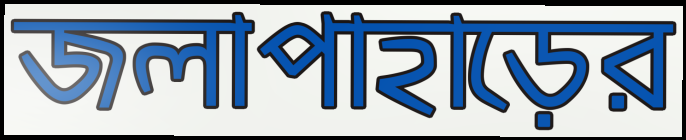
জলাপাহাড়ের